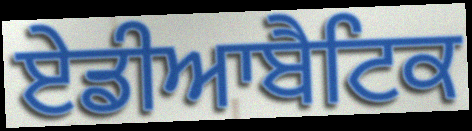
ਏਡੀਆਬੈਟਿਕ